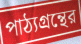
পাঠ্যগ্রন্থের